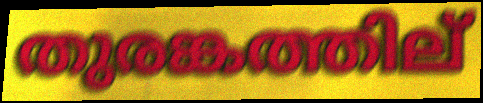
തുരങ്കത്തില്